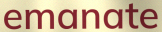
emanate